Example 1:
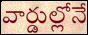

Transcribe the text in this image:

వార్డుల్లోనే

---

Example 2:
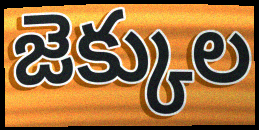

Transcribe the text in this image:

జెక్కుల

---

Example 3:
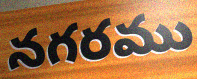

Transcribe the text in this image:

నగరము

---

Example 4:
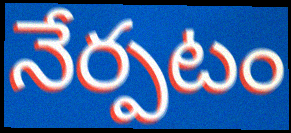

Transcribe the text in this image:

నేర్పటం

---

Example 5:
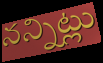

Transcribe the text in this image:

నన్నిట్లు